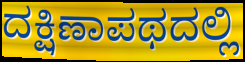
ದಕ್ಷಿಣಾಪಥದಲ್ಲಿ